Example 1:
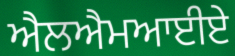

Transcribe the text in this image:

ਐਲਐਮਆਈਏ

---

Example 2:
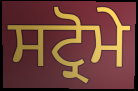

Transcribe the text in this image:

ਸਟ੍ਰੋਮੇ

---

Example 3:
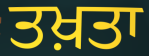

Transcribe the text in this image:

ਤਖ਼ਤਾ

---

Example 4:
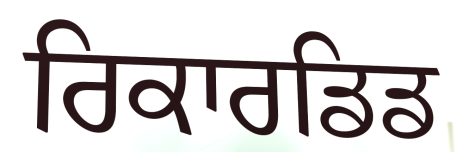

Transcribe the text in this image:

ਰਿਕਾਰਡਿਡ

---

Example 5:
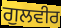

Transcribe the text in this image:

ਗੁਲਵੀਰ